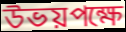
উভয়পক্ষে